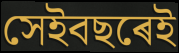
সেইবছৰেই